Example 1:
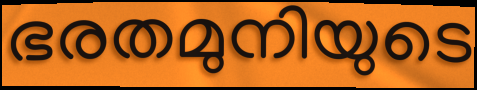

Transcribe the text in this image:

ഭരതമുനിയുടെ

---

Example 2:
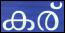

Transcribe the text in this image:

കര്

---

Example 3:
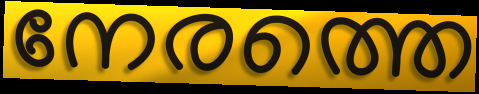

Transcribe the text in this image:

നേരത്തെ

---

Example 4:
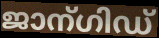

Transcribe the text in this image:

ജാന്ഗിഡ്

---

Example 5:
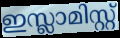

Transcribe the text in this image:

ഇസ്ലാമിസ്റ്റ്